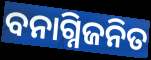
ବନାଗ୍ନିଜନିତ